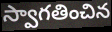
స్వాగతించిన